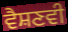
ਵੈਸ਼ਣਵੀ